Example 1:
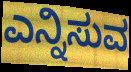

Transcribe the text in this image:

ಎನ್ನಿಸುವ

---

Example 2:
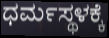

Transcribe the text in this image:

ಧರ್ಮಸ್ಥಳಕ್ಕೆ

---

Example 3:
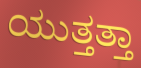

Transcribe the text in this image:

ಯುತ್ತತ್ತಾ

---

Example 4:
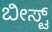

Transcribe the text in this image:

ಬೀಸ್ಟ್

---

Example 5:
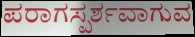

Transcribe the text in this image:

ಪರಾಗಸ್ಪರ್ಶವಾಗುವ